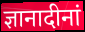
ज्ञानादीनां